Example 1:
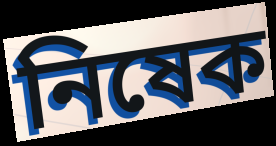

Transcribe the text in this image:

নিষেক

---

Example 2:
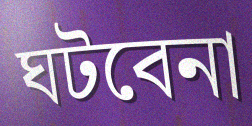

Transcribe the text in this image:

ঘটবেনা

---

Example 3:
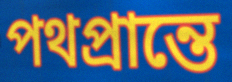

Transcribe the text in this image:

পথপ্রান্তে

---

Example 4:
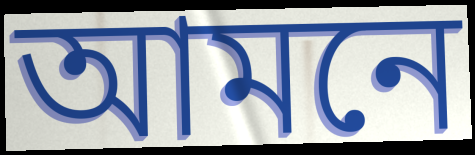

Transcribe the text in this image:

আমনে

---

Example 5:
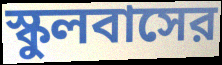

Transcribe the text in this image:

স্কুলবাসের